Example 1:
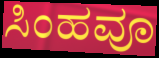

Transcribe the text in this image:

ಸಿಂಹವೂ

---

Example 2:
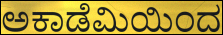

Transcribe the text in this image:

ಅಕಾಡೆಮಿಯಿಂದ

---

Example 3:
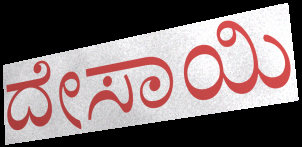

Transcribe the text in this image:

ದೇಸಾಯಿ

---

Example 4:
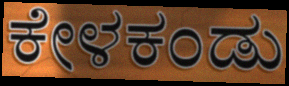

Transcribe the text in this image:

ಕೇಳಕಂಡು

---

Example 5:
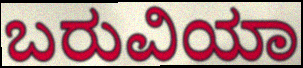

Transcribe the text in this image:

ಬರುವಿಯಾ